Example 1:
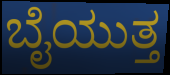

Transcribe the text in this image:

ಬೈಯುತ್ತ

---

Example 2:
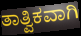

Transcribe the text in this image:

ತಾತ್ವಿಕವಾಗಿ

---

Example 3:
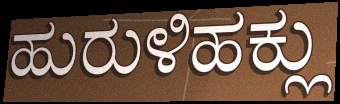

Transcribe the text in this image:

ಹುರುಳಿಹಕ್ಲು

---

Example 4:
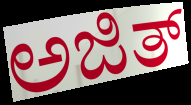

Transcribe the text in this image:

ಅಜಿತ್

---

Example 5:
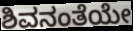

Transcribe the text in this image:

ಶಿವನಂತೆಯೇ